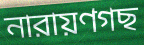
নারায়ণগছ